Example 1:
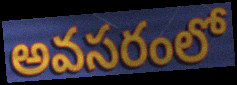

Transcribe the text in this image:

అవసరంలో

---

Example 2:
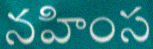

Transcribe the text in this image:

నహింస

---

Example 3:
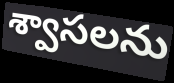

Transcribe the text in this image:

శ్వాసలను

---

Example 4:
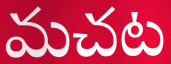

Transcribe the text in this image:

మచట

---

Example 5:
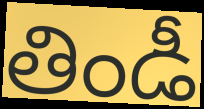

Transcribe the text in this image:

తిండీ